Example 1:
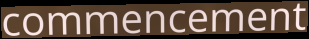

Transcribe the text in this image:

commencement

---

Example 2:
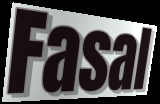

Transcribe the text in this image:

Fasal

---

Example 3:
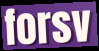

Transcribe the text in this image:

forsv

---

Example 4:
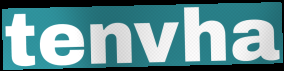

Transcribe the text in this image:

tenvha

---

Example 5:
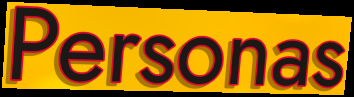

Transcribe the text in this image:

Personas